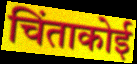
चिंताकोई